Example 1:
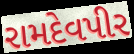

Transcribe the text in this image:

રામદેવપીર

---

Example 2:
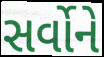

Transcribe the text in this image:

સર્વોને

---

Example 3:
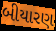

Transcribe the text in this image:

બીયારણ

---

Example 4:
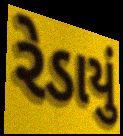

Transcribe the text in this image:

રેડાયું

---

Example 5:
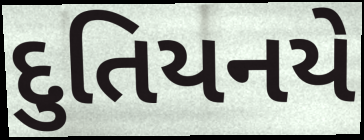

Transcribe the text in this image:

દુતિયનયે